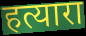
हत्यारा